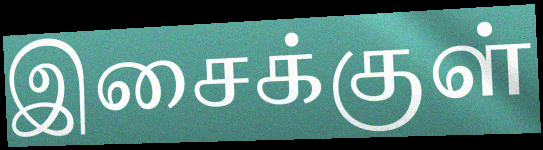
இசைக்குள்